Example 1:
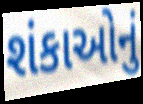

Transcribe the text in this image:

શંકાઓનું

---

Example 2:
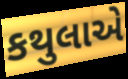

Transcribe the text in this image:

કથુલાએ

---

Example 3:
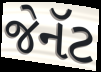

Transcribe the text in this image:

જેનૅટ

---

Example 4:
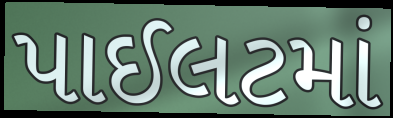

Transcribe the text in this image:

પાઈલટમાં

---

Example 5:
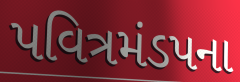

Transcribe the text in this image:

પવિત્રમંડપના